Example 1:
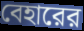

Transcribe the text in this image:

বেহারের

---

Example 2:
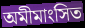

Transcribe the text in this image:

অমীমাংসিত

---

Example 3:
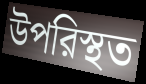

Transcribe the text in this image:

উপরিস্থত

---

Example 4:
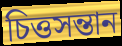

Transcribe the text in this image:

চিত্তসন্তান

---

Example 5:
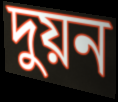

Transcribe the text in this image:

দুয়ন